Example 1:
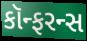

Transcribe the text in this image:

કૉન્ફરન્સ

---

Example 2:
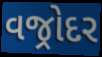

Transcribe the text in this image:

વજ્રોદર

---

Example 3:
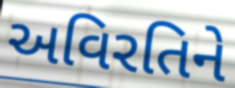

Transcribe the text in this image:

અવિરતિને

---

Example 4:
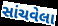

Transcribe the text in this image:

સાંચવેલા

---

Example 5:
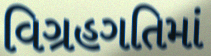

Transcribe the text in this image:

વિગ્રહગતિમાં